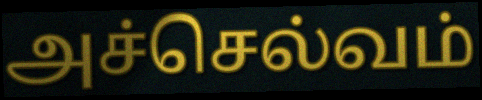
அச்செல்வம்